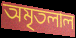
অমৃতলাল